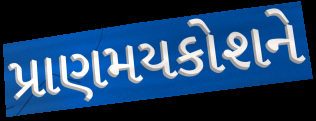
પ્રાણમયકોશને